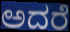
ಅದರೆ